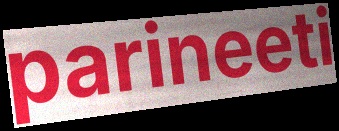
parineeti